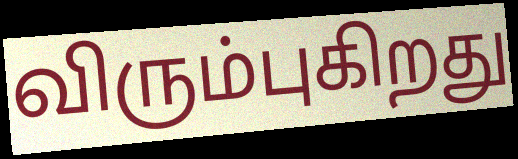
விரும்புகிறது